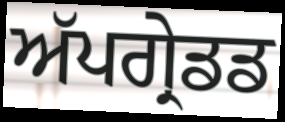
ਅੱਪਗ੍ਰੇਡਡ